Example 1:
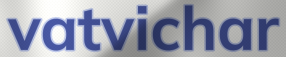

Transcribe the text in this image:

vatvichar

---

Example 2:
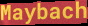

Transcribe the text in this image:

Maybach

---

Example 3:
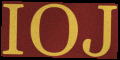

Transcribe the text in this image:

IOJ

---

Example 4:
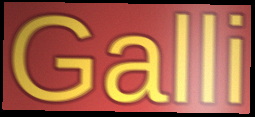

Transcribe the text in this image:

Galli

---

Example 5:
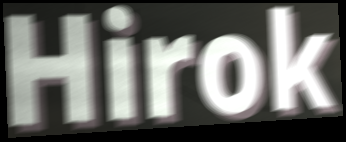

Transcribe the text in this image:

Hirok